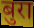
बुरा